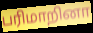
பரிமாறினா